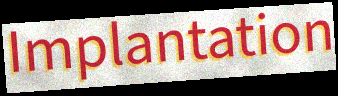
Implantation